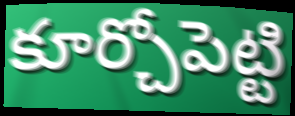
కూర్చోపెట్టి